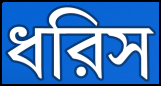
ধরিস